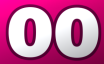
oo